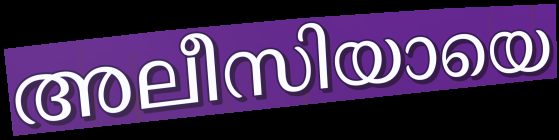
അലീസിയായെ